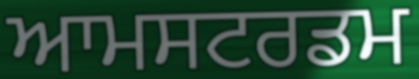
ਆਮਸਟਰਡਮ